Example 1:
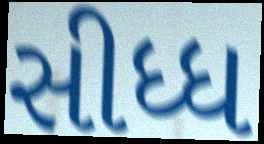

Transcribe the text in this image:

સીધ્ધ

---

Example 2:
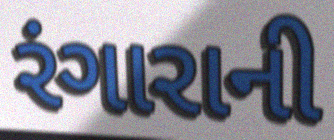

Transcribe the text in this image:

રંગારાની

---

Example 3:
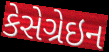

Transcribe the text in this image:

કેસેગ્રેઇન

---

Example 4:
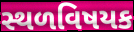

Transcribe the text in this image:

સ્થળવિષયક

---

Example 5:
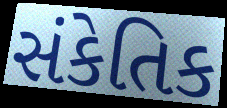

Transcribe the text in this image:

સંકેતિક